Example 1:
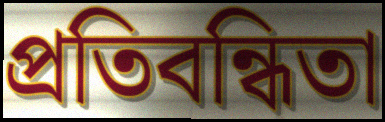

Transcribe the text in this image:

প্রতিবন্ধিতা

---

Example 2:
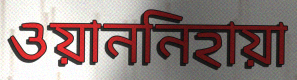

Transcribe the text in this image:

ওয়াননিহায়া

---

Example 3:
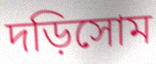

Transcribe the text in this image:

দড়িসোম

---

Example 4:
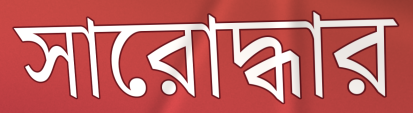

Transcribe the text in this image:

সারোদ্ধার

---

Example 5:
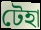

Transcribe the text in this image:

টেহা